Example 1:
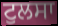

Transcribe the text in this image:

ਟੁਲਸਾ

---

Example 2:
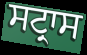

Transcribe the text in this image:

ਸਟ੍ਰਾਸ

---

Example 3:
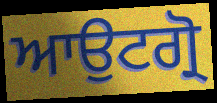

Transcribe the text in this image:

ਆਉਟਗ੍ਰੋ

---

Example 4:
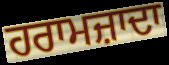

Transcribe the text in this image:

ਹਰਾਮਜ਼ਾਦਾ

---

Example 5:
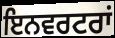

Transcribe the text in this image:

ਇਨਵਰਟਰਾਂ